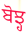
ਬੋਝ੍ਹ